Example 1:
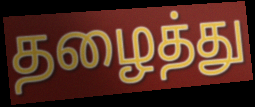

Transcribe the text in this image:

தழைத்து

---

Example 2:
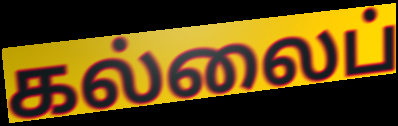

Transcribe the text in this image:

கல்லைப்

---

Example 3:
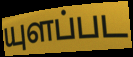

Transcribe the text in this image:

யுளப்பட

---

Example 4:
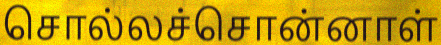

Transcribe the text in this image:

சொல்லச்சொன்னாள்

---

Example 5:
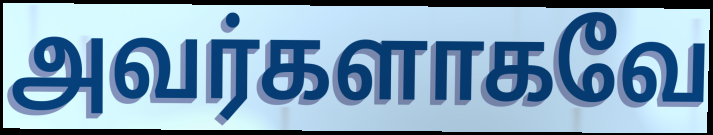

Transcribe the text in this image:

அவர்களாகவே